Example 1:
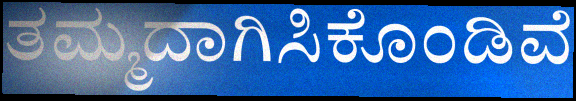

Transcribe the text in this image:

ತಮ್ಮದಾಗಿಸಿಕೊಂಡಿವೆ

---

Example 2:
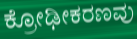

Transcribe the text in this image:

ಕ್ರೋಢೀಕರಣವು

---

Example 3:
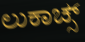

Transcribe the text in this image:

ಲುಕಾಚ್ಸ್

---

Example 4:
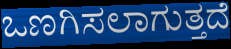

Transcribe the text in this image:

ಒಣಗಿಸಲಾಗುತ್ತದೆ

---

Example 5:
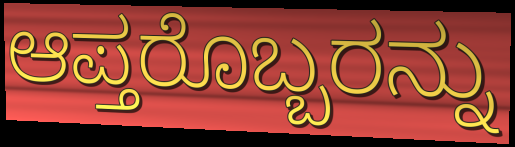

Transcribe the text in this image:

ಆಪ್ತರೊಬ್ಬರನ್ನು